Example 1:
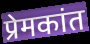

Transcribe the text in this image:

प्रेमकांत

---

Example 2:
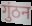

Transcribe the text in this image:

गुंठन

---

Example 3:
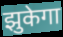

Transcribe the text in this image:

झुकेगा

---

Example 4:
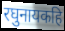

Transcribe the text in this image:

रघुनायकहि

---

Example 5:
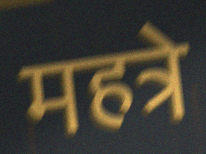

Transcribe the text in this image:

महत्रे